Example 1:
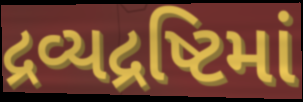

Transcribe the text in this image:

દ્રવ્યદ્રષ્ટિમાં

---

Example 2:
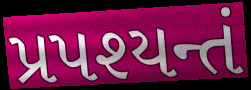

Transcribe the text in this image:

પ્રપશ્યન્તં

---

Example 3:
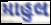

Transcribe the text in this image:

માહુલ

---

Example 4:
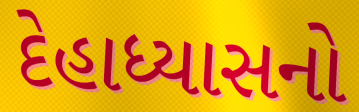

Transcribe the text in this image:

દેહાધ્યાસનો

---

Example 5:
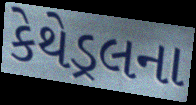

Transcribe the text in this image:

કેથેડ્રલના